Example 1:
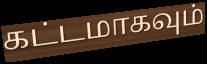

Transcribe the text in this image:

கட்டமாகவும்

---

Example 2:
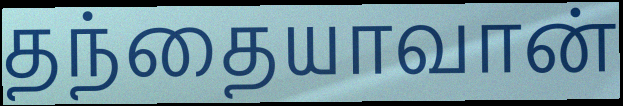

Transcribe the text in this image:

தந்தையாவான்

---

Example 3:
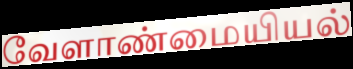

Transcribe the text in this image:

வேளாண்மையியல்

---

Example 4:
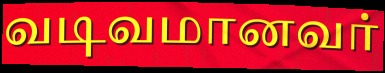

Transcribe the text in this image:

வடிவமானவர்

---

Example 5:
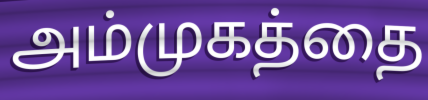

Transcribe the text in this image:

அம்முகத்தை